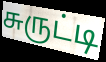
சுருட்டி